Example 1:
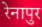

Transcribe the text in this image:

रेनापुर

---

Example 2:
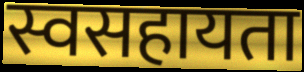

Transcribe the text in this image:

स्‍वसहायता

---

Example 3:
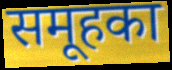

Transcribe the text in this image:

समूहका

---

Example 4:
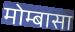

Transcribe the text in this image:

मोम्बासा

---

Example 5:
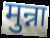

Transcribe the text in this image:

मुन्ना